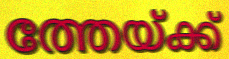
ത്തേയ്ക്ക്